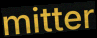
mitter